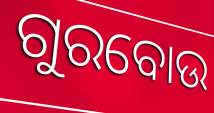
ଗୁରବୋଉ